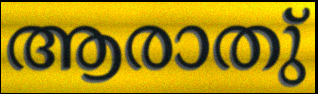
ആരാതു്